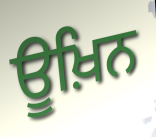
ਊਖ਼ਿਨ